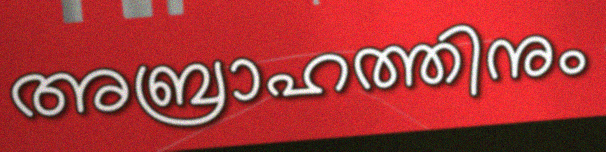
അബ്രാഹത്തിനും